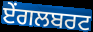
ਏਂਗਲਬਰਟ